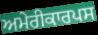
ਅਮੇਰੀਕਾਰਪਸ